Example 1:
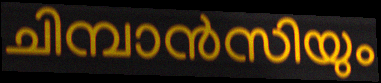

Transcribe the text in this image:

ചിമ്പാൻസിയും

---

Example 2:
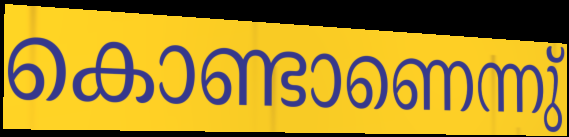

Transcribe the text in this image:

കൊണ്ടാണെന്നു്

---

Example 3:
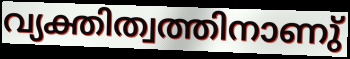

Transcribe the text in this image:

വ്യക്തിത്വത്തിനാണു്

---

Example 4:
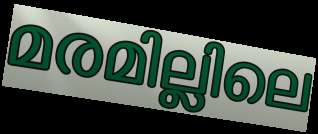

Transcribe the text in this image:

മരമില്ലിലെ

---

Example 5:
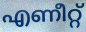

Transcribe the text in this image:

എണീറ്റ്